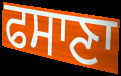
ਫਸਾਣਾ